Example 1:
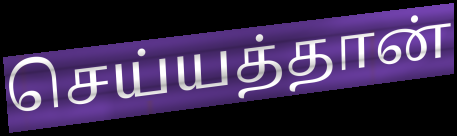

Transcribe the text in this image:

செய்யத்தான்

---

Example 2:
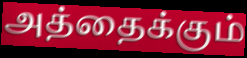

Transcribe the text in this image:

அத்தைக்கும்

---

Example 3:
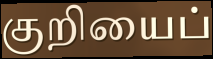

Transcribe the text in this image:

குறியைப்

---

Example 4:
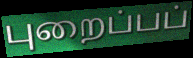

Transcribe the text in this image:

புறைப்பப்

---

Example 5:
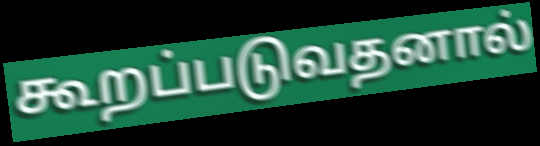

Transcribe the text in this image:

கூறப்படுவதனால்